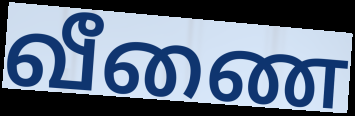
வீணை